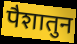
पैशातुन